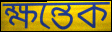
ক্ষন্তেক